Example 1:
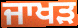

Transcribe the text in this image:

ਜਾਖੜ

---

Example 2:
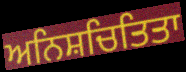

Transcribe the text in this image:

ਅਨਿਸ਼ਚਿਤਿਤਾ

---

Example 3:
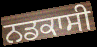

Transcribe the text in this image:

ਨਡਕਾਸੀ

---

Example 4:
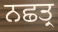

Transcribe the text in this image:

ਨਛਤ੍ਰ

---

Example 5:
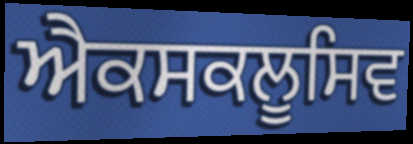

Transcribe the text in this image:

ਐਕਸਕਲੂਸਿਵ